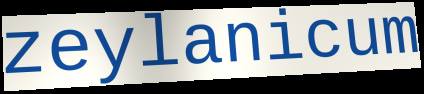
zeylanicum